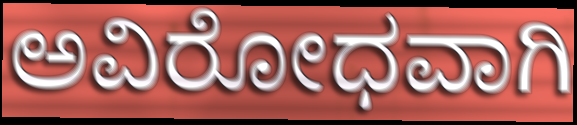
ಅವಿರೋಧವಾಗಿ